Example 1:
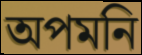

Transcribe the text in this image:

অপমনি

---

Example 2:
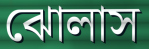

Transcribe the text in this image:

ঝোলাস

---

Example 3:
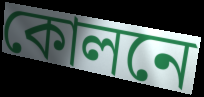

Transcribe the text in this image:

কোলনে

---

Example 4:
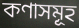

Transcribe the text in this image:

কণাসমূহ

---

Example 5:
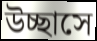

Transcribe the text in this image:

উচ্ছাসে